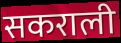
सकराली